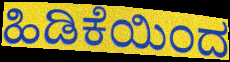
ಹಿಡಿಕೆಯಿಂದ